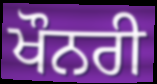
ਖੌਨਰੀ